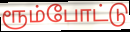
ரூம்போட்டு